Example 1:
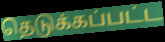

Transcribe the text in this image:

தெடுக்கப்பட்ட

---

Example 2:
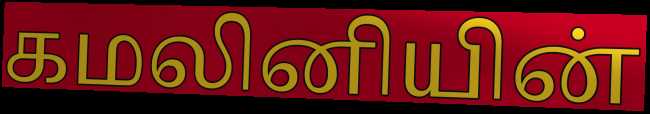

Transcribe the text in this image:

கமலினியின்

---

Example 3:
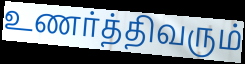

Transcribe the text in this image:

உணர்த்திவரும்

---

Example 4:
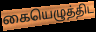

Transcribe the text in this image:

கையெழுத்திட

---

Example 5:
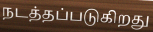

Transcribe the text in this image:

நடத்தப்படுகிறது